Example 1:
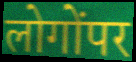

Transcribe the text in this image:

लोगोंपर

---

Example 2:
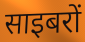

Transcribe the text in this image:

साइबरों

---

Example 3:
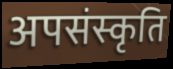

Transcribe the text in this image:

अपसंस्कृति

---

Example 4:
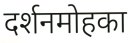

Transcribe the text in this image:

दर्शनमोहका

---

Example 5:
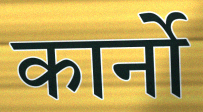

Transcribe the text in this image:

कार्नो